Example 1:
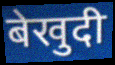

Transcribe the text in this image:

बेखुदी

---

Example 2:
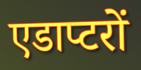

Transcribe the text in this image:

एडाप्टरों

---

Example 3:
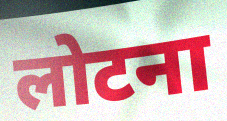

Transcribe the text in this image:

लोटना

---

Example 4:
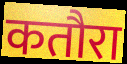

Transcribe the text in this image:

कतौरा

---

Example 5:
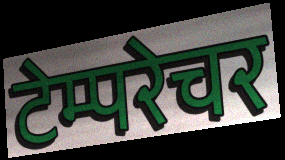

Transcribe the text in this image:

टेम्परेचर